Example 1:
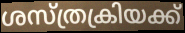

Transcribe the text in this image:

ശസ്ത്രക്രിയക്ക്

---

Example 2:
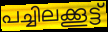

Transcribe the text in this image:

പച്ചിലക്കൂട്ട്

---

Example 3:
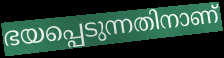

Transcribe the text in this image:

ഭയപ്പെടുന്നതിനാണ്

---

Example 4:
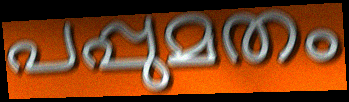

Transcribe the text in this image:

പപ്പുമതം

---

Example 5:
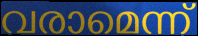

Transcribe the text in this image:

വരാമെന്ന്